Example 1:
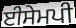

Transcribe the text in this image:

ਈਸੇਮਪੀ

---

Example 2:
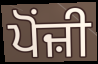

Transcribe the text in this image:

ਪੋਂਜ਼ੀ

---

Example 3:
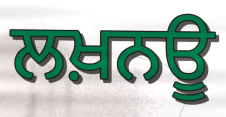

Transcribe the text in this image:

ਲਖ਼ਨਊ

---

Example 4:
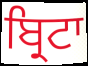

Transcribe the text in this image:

ਬ੍ਰਿਟਾ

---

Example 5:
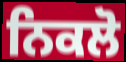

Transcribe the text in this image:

ਨਿਕਲੋ